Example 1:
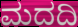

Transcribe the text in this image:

ಮದದಿ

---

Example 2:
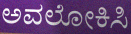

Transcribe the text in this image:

ಅವಲೋಕಿಸಿ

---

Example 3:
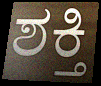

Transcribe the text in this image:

ಶಕ್ತಿ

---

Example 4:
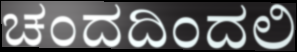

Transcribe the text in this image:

ಚಂದದಿಂದಲಿ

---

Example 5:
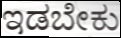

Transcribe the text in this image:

ಇಡಬೇಕು